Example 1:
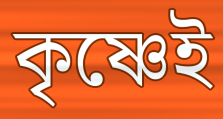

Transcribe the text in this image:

কৃষ্ণেই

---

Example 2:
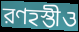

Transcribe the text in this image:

রণহস্তীও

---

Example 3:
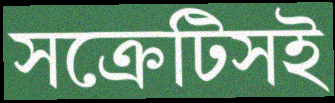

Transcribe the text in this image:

সক্রেটিসই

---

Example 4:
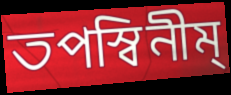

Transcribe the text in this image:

তপস্বিনীম্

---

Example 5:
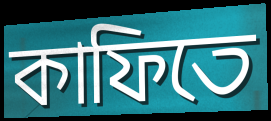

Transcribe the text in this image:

কাফিতে